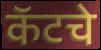
कॅटचे